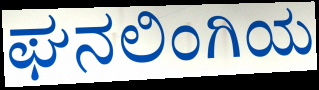
ಘನಲಿಂಗಿಯ